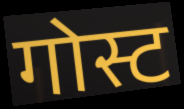
गोस्ट